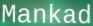
Mankad